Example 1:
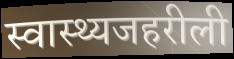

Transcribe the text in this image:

स्वास्थ्यजहरीली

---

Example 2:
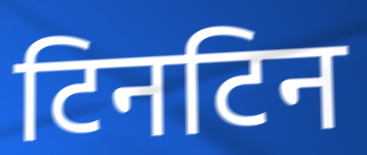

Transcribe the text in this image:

टिनटिन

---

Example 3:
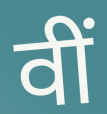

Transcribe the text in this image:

वीं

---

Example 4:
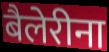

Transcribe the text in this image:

बैलेरीना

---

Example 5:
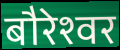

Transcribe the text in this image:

बौरेश्वर